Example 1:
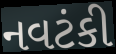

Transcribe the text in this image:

નવટંકી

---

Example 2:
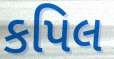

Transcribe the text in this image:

કપિલ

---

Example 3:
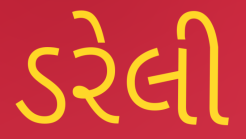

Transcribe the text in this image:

ડરેલી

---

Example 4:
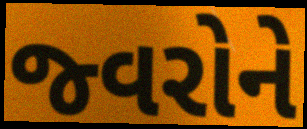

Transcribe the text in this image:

જ્વરોને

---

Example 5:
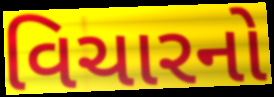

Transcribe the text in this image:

વિચારનો